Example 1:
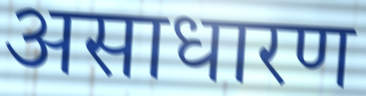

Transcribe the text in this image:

असाधारण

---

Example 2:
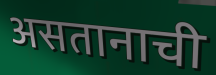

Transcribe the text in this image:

असतानाची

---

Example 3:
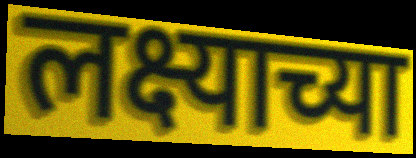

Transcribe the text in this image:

लक्ष्याच्या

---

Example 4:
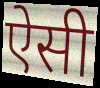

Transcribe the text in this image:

ऐसी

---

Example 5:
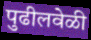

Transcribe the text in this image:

पुढीलवेळी